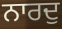
ਨਾਰਦੁ